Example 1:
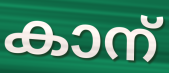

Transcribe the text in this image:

കാന്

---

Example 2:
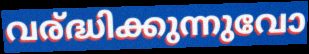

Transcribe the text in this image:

വര്ദ്ധിക്കുന്നുവോ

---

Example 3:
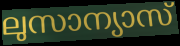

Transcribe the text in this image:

ലുസാന്യാസ്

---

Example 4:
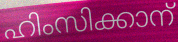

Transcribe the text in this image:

ഹിംസിക്കാന്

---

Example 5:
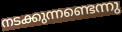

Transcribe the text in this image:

നടക്കുന്നണ്ടെന്നു